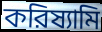
করিষ্যামি